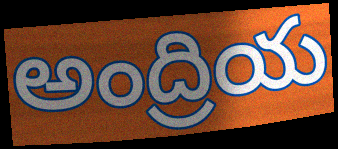
అంద్రియ